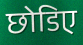
छोडिए